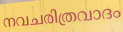
നവചരിത്രവാദം